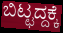
ಬಿಟ್ಟದ್ದಕ್ಕೆ